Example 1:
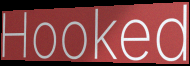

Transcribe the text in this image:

Hooked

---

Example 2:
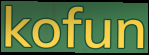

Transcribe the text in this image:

kofun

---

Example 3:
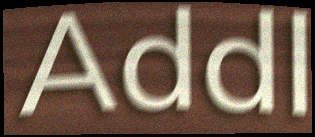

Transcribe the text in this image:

Addl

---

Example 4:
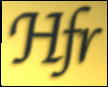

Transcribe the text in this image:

Hfr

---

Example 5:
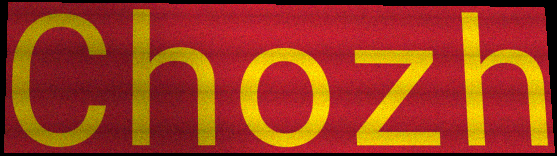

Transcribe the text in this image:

Chozh